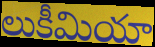
లుకీమియా